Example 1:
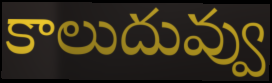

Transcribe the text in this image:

కాలుదువ్వు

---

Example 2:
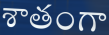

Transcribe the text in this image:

శాతంగా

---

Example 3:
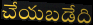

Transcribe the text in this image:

చేయబడేది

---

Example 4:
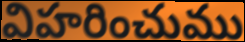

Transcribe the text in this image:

విహరించుము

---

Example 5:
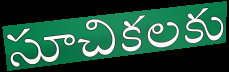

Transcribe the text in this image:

సూచికలకు